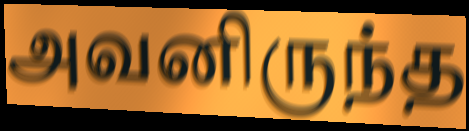
அவனிருந்த